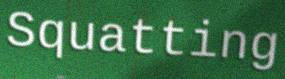
Squatting